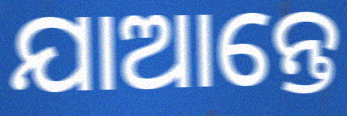
ଯାଆନ୍ତେ